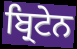
ਬ੍ਰਿਟੇਨ